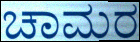
ಚಾಮರ